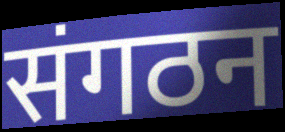
संगठन